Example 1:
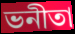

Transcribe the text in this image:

ভনীতা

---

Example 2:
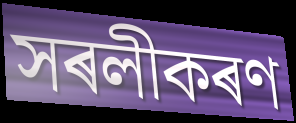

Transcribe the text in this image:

সৰলীকৰণ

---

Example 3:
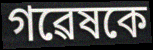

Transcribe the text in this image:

গৱেষকে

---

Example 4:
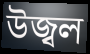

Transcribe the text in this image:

উজ্বল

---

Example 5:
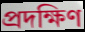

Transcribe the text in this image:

প্ৰদক্ষিণ